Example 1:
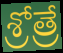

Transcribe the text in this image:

శ్రోత్రే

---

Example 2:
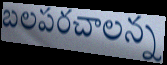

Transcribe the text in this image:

బలపరచాలన్న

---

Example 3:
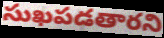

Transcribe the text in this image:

సుఖపడతారని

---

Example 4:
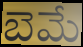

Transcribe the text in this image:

బెమే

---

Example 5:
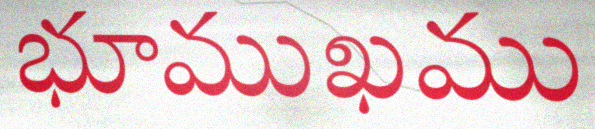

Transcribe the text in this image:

భూముఖము